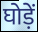
घोड़ें